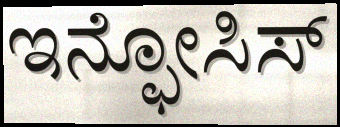
ಇನ್ಫೋಸಿಸ್